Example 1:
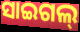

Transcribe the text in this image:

ସାଇଗଲ୍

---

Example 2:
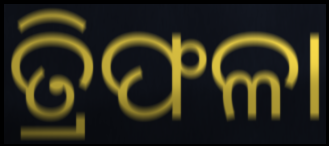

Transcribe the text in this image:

ତ୍ରିଫଳା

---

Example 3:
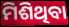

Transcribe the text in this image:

ମିଶିଥିବା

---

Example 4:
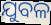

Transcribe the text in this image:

ଯୁବଳ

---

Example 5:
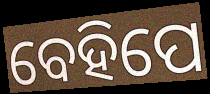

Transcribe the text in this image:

ବେହିପେ